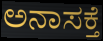
ಅನಾಸಕ್ತೆ